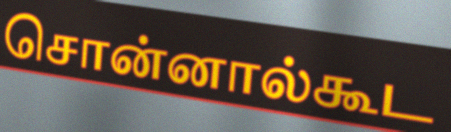
சொன்னால்கூட